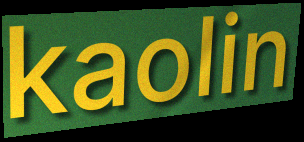
kaolin